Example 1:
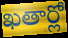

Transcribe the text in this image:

ఖతార్లో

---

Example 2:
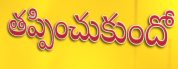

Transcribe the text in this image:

తప్పించుకుందో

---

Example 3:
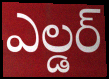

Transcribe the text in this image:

ఎల్డర్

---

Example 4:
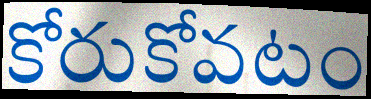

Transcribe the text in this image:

కోరుకోవటం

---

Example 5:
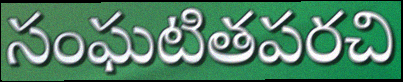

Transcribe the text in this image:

సంఘటితపరచి